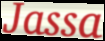
Jassa